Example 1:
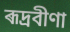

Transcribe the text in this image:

ৰূদ্ৰবীণা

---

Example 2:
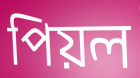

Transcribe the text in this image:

পিয়ল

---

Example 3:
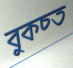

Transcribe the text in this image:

বুকচ্ত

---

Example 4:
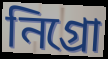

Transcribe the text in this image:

নিগ্ৰো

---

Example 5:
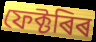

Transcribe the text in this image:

ফেক্টৰিৰ